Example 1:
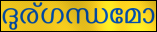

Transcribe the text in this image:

ദുര്ഗന്ധമോ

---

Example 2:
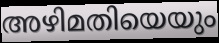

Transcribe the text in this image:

അഴിമതിയെയും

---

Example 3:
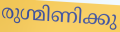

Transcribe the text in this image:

രുഗ്മിണിക്കു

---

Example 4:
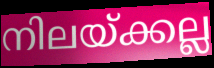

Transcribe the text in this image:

നിലയ്ക്കല്ല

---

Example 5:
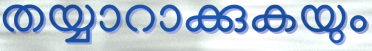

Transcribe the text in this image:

തയ്യാറാക്കുകയും